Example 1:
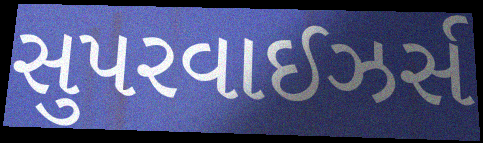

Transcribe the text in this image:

સુપરવાઈઝર્સ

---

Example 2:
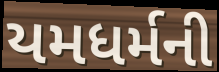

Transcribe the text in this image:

યમધર્મની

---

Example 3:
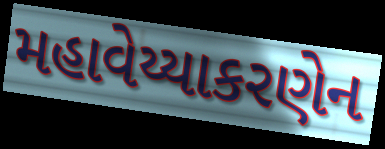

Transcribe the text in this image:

મહાવેય્યાકરણેન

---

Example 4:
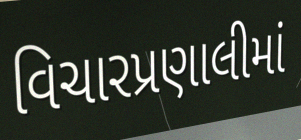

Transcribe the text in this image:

વિચારપ્રણાલીમાં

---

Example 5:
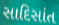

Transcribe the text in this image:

સાદિસાંત